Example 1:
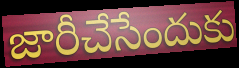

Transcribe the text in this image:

జారీచేసేందుకు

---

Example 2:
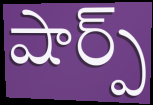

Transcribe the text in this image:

షార్ప్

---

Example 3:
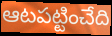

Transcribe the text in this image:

ఆటపట్టించేది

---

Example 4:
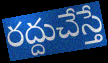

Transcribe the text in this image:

రద్దుచేస్తే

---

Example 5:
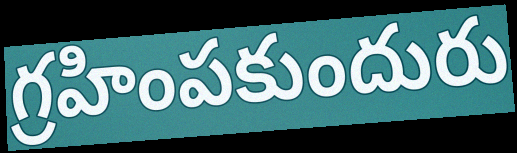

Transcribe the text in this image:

గ్రహింపకుందురు